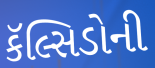
કૅલ્સિડોની